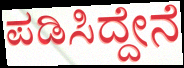
ಪಡಿಸಿದ್ದೇನೆ